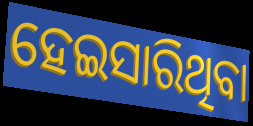
ହେଇସାରିଥିବା